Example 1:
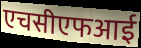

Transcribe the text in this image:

एचसीएफआई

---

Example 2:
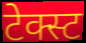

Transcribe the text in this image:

टेक्स्ट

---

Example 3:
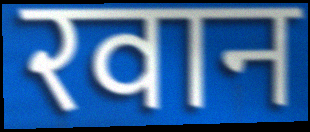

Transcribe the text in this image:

रवान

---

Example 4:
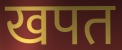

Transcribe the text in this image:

खपत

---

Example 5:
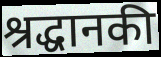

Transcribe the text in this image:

श्रद्धानकी